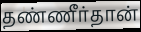
தண்ணீர்தான்